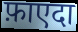
फ़ाएदा